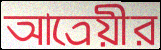
আত্রেয়ীর